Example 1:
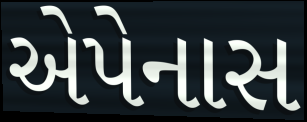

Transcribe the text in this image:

એપેનાસ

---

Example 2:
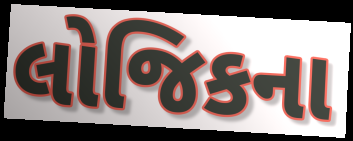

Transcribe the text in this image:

લોજિકના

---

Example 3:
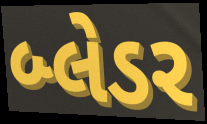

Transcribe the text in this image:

બ્લેડર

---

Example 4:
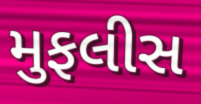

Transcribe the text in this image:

મુફલીસ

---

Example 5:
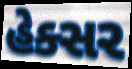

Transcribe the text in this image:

હેક્સર